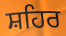
ਸ਼ਹਿਰ